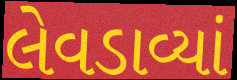
લેવડાવ્યાં